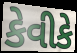
કેવીકે